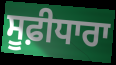
ਸੂਫ਼ੀਧਾਰਾ